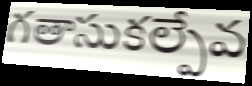
గతాసుకల్పేవ